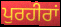
ਪੁਰਹੀਰਾਂ